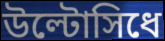
উল্টোসিধে